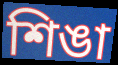
শিঙা